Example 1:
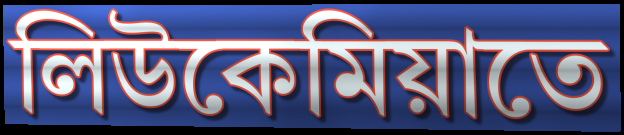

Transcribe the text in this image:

লিউকেমিয়াতে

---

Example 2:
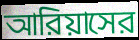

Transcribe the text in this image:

আরিয়াসের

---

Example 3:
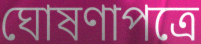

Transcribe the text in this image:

ঘোষণাপত্রে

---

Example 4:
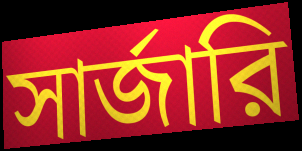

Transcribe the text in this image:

সার্জারি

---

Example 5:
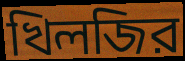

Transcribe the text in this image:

খিলজির